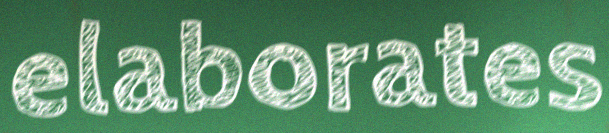
elaborates